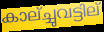
കാല്ച്ചുവട്ടില്